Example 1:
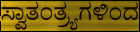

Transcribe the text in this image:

ಸ್ವಾತಂತ್ರ್ಯಗಳಿಂದ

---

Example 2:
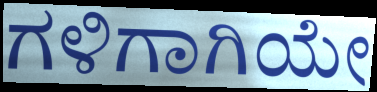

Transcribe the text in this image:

ಗಳಿಗಾಗಿಯೇ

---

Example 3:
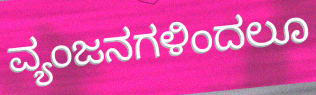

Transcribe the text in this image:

ವ್ಯಂಜನಗಳಿಂದಲೂ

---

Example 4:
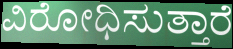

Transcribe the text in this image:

ವಿರೋಧಿಸುತ್ತಾರೆ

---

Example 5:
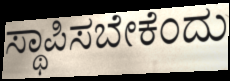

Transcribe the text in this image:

ಸ್ಥಾಪಿಸಬೇಕೆಂದು